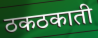
ठकठकाती